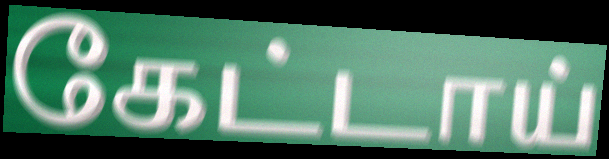
கேட்டாய்